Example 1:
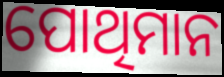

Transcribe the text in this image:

ପୋଥିମାନ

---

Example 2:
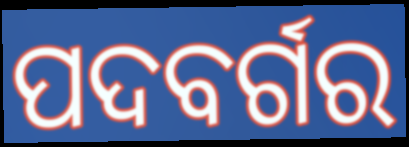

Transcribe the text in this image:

ପଦବର୍ଗର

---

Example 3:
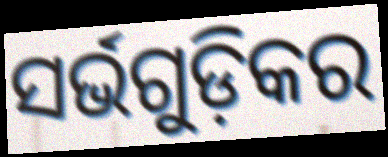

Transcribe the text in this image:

ସର୍ଭଗୁଡ଼ିକର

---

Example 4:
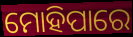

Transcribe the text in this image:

ମୋହିପାରେ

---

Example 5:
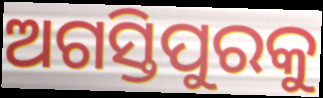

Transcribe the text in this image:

ଅଗସ୍ତିପୁରକୁ